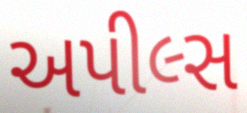
અપીલ્સ